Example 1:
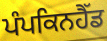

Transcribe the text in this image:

ਪੰਪਕਿਨਹੈੱਡ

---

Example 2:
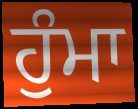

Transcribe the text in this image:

ਹੁੰਮਾ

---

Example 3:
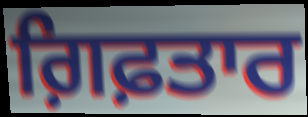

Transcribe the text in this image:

ਗ਼ਿਫ਼ਤਾਰ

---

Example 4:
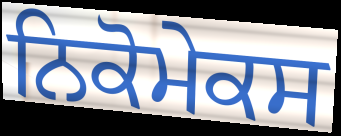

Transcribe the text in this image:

ਨਿਕੋਮੇਕਸ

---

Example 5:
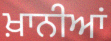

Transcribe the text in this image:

ਖ਼ਾਨੀਆਂ